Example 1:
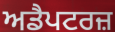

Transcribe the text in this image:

ਅਡੈਪਟਰਜ਼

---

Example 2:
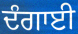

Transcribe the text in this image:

ਦੰਗਾਈ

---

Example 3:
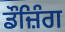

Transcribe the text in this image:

ਡੌਜ਼ਿੰਗ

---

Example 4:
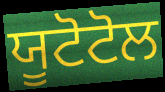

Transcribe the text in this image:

ਯੂਟੋਟੋਲ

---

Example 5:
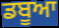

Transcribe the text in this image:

ਡਬੂਆ